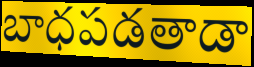
బాధపడతాడా